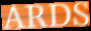
ARDS